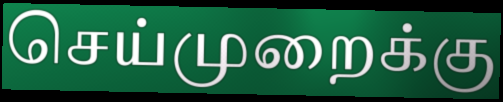
செய்முறைக்கு